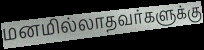
மனமில்லாதவர்களுக்கு